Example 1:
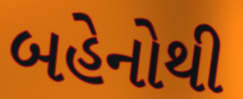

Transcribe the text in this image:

બહેનોથી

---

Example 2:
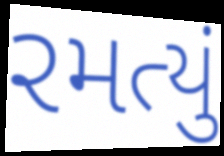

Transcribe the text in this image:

રમત્યું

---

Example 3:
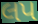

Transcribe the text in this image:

લપ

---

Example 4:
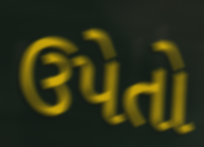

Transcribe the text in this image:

ઉપેતો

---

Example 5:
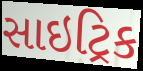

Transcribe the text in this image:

સાઇટ્રિક